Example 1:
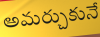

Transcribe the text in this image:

అమర్చుకునే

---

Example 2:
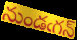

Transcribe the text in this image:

నుండఁగన్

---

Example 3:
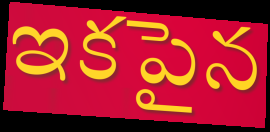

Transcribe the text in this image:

ఇకపైన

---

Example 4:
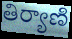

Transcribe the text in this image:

తిర్యాణి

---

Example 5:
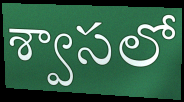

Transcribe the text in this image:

శ్వాసలో